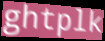
ghtplk